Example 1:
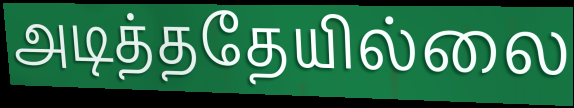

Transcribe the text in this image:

அடித்ததேயில்லை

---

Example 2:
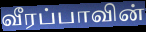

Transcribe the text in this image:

வீரப்பாவின்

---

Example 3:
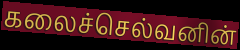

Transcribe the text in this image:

கலைச்செல்வனின்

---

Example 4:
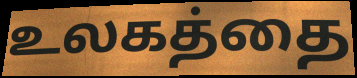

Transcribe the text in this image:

உலகத்தை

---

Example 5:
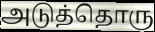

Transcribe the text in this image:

அடுத்தொரு